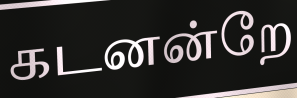
கடனன்றே